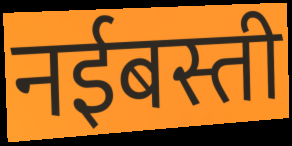
नईबस्ती